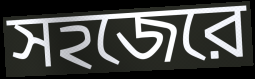
সহজেরে